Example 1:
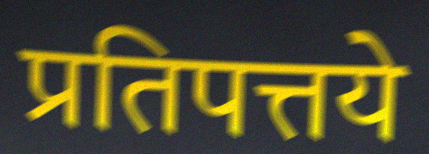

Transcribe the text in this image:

प्रतिपत्तये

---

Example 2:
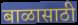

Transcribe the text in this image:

बाळासाठी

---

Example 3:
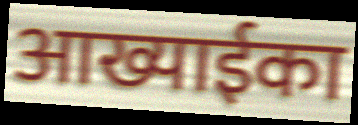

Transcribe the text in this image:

आख्याईका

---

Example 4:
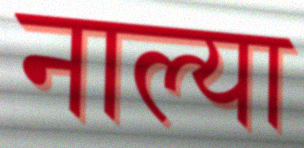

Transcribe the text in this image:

नाल्या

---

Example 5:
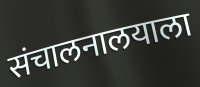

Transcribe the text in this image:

संचालनालयाला